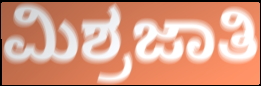
ಮಿಶ್ರಜಾತಿ